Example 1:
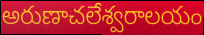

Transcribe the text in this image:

అరుణాచలేశ్వరాలయం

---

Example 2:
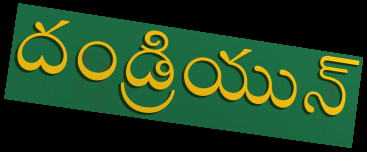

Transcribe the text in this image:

దండ్రియున్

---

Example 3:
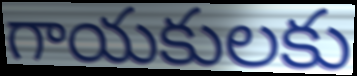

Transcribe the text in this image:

గాయకులకు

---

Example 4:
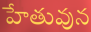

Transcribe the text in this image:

హేతువున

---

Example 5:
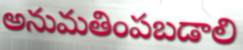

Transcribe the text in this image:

అనుమతింపబడాలి